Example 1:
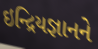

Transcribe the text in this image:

ઇન્દ્રિયજ્ઞાનને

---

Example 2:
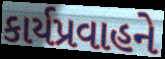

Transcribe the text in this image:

કાર્યપ્રવાહને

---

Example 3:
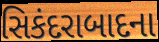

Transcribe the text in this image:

સિકંદરાબાદના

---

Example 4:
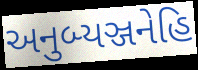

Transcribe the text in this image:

અનુબ્યઞ્જનેહિ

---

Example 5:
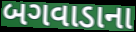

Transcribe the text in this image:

બગવાડાના